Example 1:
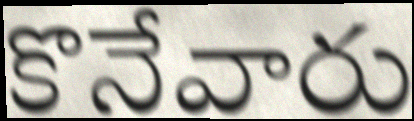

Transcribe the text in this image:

కొనేవారు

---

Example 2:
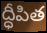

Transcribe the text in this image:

ద్ధీపిత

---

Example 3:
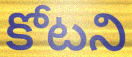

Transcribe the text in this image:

కోటని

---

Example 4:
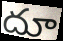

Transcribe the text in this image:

దూ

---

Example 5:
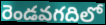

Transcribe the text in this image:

రెండవగదిలో